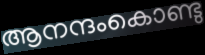
ആനന്ദംകൊണ്ടു